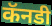
कॅनडी